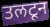
उलटून